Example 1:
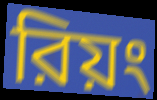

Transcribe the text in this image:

রিয়ং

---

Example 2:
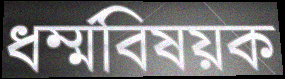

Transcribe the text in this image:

ধর্ম্মবিষয়ক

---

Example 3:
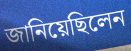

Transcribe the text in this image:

জানিয়েছিলেন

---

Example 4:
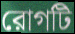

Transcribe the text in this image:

রোগটি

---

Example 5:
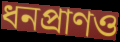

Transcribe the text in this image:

ধনপ্রাণও